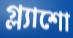
গ্ল্যাশো